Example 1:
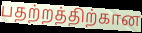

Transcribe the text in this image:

பதற்றத்திற்கான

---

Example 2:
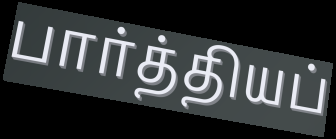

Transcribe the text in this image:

பார்த்தியப்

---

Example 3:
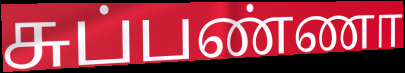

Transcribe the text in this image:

சுப்பண்ணா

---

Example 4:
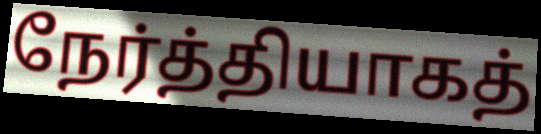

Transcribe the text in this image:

நேர்த்தியாகத்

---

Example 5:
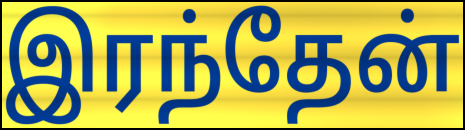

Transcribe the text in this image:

இரந்தேன்